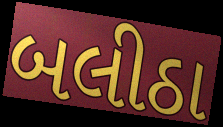
બલીઠા